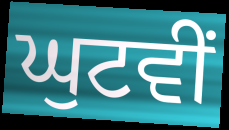
ਘੁਟਵੀਂ